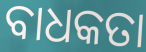
ବାଧକତା